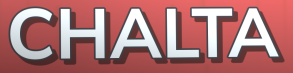
CHALTA